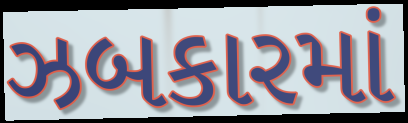
ઝબકારમાં